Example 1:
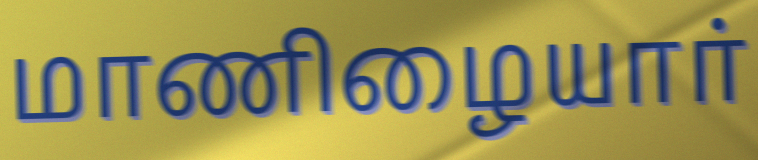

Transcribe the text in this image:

மாணிழையார்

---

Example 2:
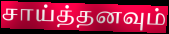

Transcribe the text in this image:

சாய்த்தனவும்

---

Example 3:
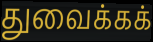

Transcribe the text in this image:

துவைக்கக்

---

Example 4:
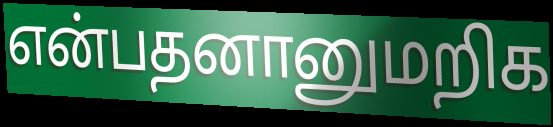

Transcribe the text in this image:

என்பதனானுமறிக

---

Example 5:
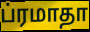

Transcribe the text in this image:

ப்ரமாதா